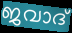
ജവാദ്